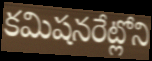
కమిషనరేట్లోని